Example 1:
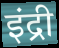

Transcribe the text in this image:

इंद्री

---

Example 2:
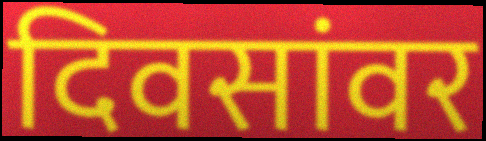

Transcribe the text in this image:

दिवसांवर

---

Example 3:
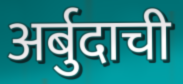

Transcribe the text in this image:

अर्बुदाची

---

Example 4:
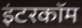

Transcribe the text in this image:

इंटरकॉम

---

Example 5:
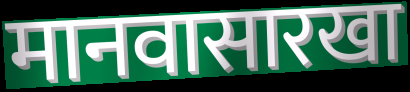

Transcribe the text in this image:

मानवासारखा